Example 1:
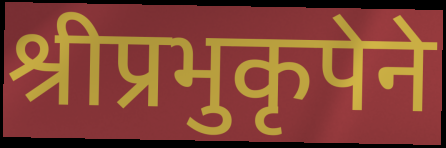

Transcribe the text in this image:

श्रीप्रभुकृपेने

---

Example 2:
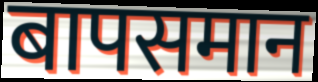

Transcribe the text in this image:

बापसमान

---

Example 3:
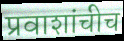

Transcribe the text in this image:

प्रवाशांचीच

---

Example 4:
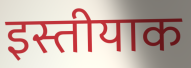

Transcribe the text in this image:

इस्तीयाक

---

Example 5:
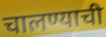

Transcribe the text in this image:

चालण्याची